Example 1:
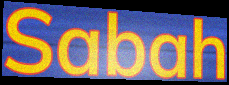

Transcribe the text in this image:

Sabah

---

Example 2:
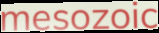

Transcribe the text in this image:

mesozoic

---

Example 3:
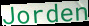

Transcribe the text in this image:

Jorden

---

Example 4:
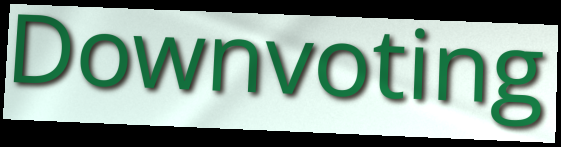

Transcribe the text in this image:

Downvoting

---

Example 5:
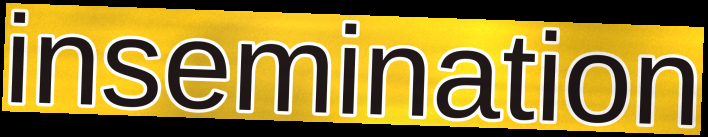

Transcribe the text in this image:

insemination